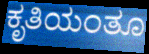
ಕೃತಿಯಂತೂ